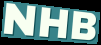
NHB